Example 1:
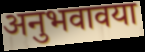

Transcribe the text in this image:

अनुभवावया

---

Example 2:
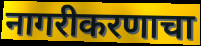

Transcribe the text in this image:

नागरीकरणाचा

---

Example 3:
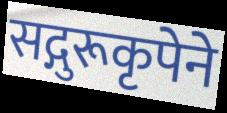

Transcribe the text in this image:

सद्गुरूकृपेने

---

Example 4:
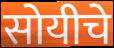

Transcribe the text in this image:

सोयीचे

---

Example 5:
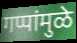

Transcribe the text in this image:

गप्पांमुळे